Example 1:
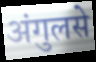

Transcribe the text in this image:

अंगुलसे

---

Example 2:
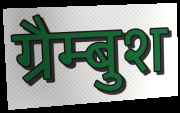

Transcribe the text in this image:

ग्रैम्बुश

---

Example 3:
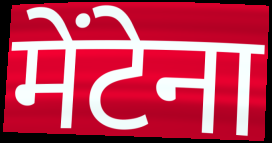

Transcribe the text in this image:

मेंटेना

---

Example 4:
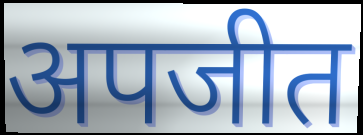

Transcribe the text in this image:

अपजीत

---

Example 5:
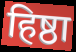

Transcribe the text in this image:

हिष्ठा